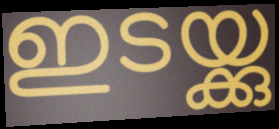
ഇടയ്ക്കു